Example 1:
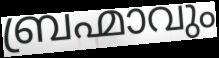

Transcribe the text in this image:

ബ്രഹ്മാവും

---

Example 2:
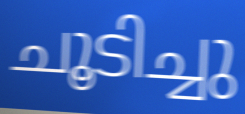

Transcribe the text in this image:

ചൂടിച്ചു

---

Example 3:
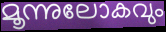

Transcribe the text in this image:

മൂന്നുലോകവും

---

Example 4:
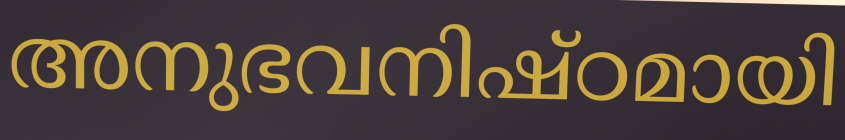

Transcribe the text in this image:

അനുഭവനിഷ്ഠമായി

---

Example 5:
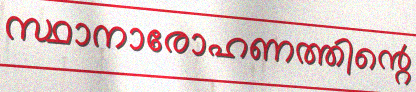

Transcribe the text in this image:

സ്ഥാനാരോഹണത്തിന്റെ